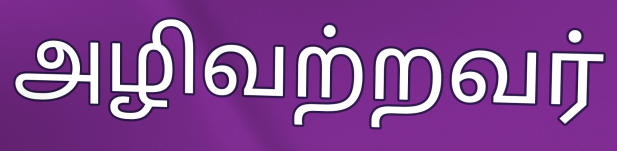
அழிவற்றவர்